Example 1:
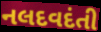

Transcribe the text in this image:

નલદવદંતી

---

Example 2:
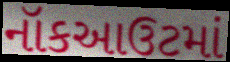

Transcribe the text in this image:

નૉકઆઉટમાં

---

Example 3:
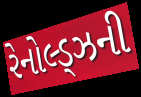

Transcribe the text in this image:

રેનોલ્ડ્ઝની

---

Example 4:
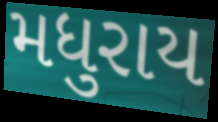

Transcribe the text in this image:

મધુરાય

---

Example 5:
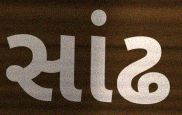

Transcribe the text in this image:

સાંઢ